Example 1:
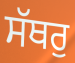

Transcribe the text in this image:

ਸੱਥਰੁ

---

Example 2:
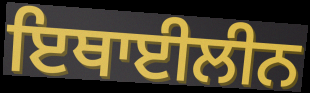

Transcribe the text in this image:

ਇਥਾਈਲੀਨ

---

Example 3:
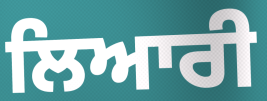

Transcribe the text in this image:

ਲਿਆਰੀ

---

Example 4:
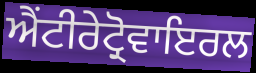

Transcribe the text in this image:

ਐਂਟੀਰੇਟ੍ਰੋਵਾਇਰਲ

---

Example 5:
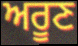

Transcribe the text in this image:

ਅਰੂਣ